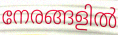
നേരങ്ങളിൽ